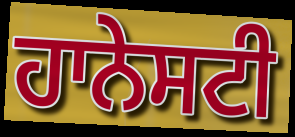
ਹਾਨੇਸਟੀ